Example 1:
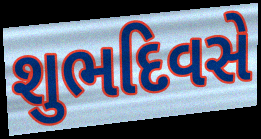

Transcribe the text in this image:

શુભદિવસે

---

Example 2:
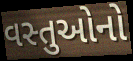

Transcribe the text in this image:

વસ્તુઓનો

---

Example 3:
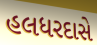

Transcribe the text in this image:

હલધરદાસે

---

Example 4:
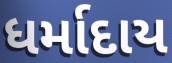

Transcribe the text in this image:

ધર્માદાય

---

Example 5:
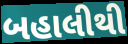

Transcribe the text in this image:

બહાલીથી